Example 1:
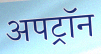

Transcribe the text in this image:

अपट्रॉन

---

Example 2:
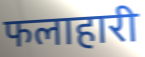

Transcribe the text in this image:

फलाहारी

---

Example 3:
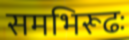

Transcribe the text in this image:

समभिरूढः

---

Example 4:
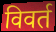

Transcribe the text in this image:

विवर्त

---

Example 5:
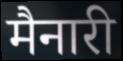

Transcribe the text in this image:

मैनारी